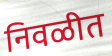
निवळीत